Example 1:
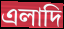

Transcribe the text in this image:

এলাদি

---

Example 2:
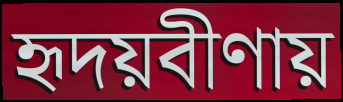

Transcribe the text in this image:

হৃদয়বীণায়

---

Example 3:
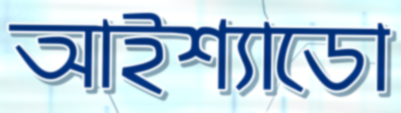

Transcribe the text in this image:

আইশ্যাডো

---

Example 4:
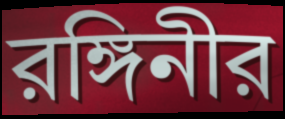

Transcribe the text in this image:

রঙ্গিনীর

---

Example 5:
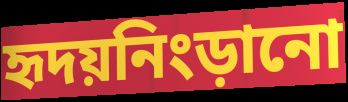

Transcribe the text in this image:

হৃদয়নিংড়ানো